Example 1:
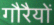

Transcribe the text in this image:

गौरैयों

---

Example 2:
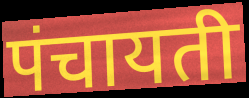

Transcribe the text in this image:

पंचायती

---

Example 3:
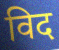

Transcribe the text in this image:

विद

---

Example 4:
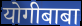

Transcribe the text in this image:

योगीबाबा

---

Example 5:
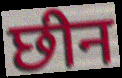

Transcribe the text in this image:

छीन